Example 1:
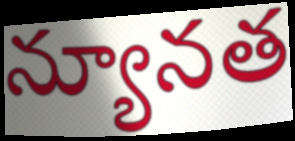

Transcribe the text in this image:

న్యూనత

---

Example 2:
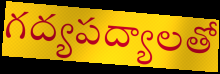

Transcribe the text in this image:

గద్యపద్యాలతో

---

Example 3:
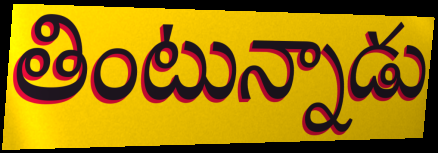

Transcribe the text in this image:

తింటున్నాడు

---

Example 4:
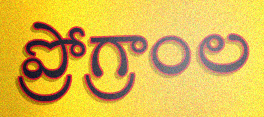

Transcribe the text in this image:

ప్రోగ్రాంల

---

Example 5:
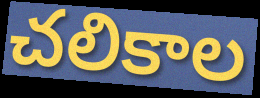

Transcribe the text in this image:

చలికాల